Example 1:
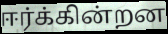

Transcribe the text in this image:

ஈர்க்கின்றன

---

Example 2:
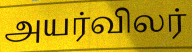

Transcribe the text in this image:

அயர்விலர்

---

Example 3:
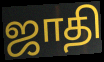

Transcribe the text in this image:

ஜாதி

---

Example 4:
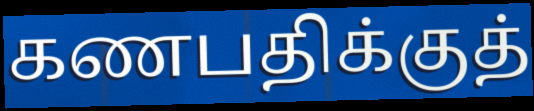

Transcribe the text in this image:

கணபதிக்குத்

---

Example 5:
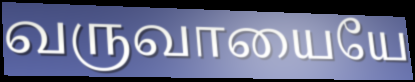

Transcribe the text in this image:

வருவாயையே